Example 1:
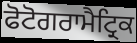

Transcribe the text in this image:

ਫੋਟੋਗਰਾਮੈਟ੍ਰਿਕ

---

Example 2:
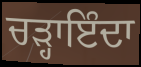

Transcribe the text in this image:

ਚੜ੍ਹਾਇੰਦਾ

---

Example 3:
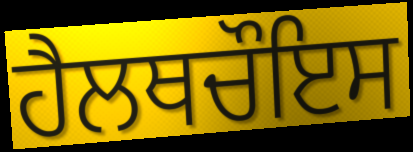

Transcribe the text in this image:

ਹੈਲਥਚੌਇਸ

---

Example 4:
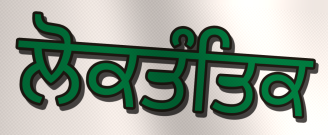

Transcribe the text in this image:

ਲੋਕਤੰਤਿਕ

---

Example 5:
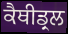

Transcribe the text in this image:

ਕੈਥੀਡ੍ਰਲ